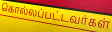
கொல்லப்பட்டவர்கள்